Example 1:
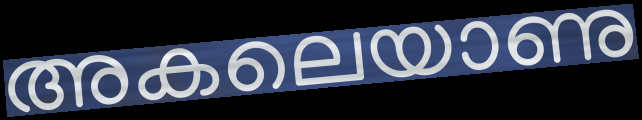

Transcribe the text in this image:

അകലെയാണു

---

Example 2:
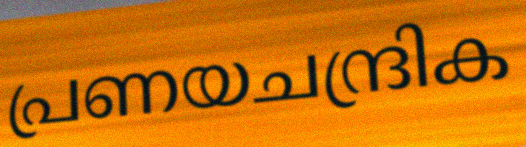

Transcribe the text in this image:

പ്രണയചന്ദ്രിക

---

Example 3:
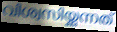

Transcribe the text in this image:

വിശ്വസിയ്ക്കുന്നത്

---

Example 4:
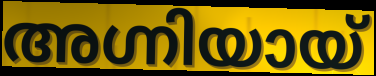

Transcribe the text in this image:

അഗ്നിയായ്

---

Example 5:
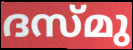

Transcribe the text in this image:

ദസ്മു